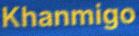
Khanmigo